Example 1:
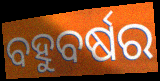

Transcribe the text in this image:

ବହୁବର୍ଷର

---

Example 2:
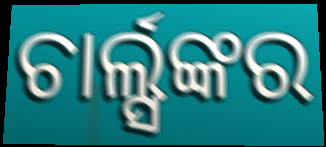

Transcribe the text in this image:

ଚାର୍ଲ୍ସଙ୍କର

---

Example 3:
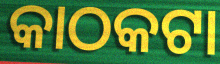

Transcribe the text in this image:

କାଠକଟା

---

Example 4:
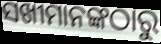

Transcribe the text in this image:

ସଖୀମାନଙ୍କଠାରୁ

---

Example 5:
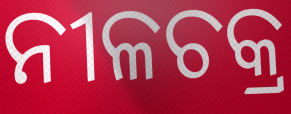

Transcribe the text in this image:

ନୀଳଚକ୍ର